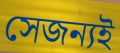
সেজন্যই